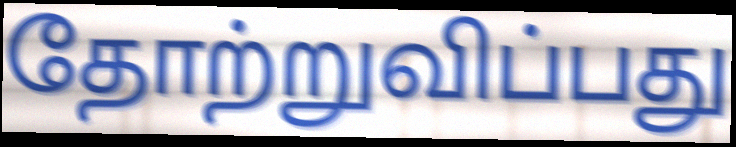
தோற்றுவிப்பது